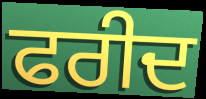
ਫਰੀਦ